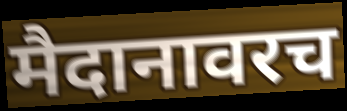
मैदानावरच